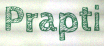
Prapti